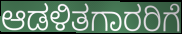
ಆಡಳಿತಗಾರರಿಗೆ